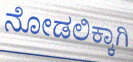
ನೋಡಲಿಕ್ಕಾಗಿ